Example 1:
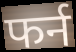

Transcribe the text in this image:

फर्न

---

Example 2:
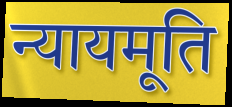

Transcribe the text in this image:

न्यायमूति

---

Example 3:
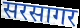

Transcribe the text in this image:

सरसागर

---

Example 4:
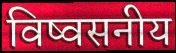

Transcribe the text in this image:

विष्वसनीय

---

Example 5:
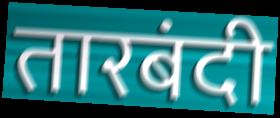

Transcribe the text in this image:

तारबंदी